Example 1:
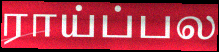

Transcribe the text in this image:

ராய்ப்பல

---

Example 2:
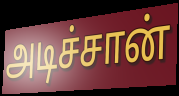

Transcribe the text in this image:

அடிச்சான்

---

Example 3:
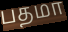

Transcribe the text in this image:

பதமா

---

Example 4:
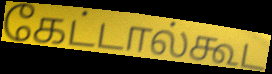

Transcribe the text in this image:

கேட்டால்கூட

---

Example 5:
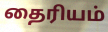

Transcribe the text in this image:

தைரியம்